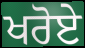
ਖਰੋਏ